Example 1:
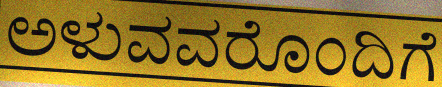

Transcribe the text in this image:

ಅಳುವವರೊಂದಿಗೆ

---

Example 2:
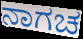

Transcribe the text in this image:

ನಾಗಚ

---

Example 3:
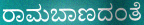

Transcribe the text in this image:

ರಾಮಬಾಣದಂತೆ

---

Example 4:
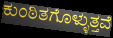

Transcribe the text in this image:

ಕುಂಠಿತಗೊಳ್ಳುತ್ತವೆ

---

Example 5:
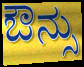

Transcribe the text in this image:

ಔನ್ಸು